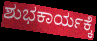
ಶುಭಕಾರ್ಯಕ್ಕೆ